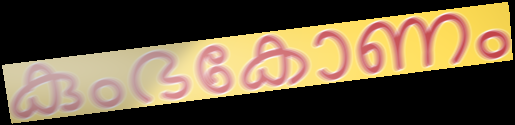
കുംഭകോണം